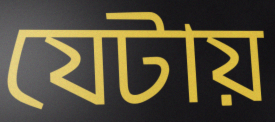
যেটায়